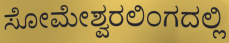
ಸೋಮೇಶ್ವರಲಿಂಗದಲ್ಲಿ